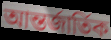
আন্তর্জার্তিক